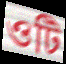
ওটি